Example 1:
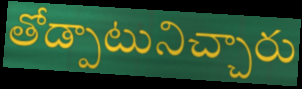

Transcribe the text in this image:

తోడ్పాటునిచ్చారు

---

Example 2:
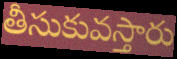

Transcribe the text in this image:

తీసుకువస్తారు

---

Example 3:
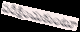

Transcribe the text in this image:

పరీక్షించుకుంటూ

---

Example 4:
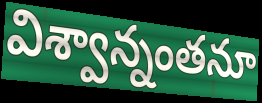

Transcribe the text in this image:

విశ్వాన్నంతనూ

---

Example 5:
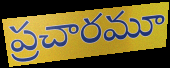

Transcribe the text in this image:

ప్రచారమూ